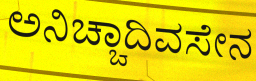
ಅನಿಚ್ಚಾದಿವಸೇನ